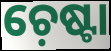
ଚ଼େଷ୍ଟା